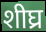
शीघ्र